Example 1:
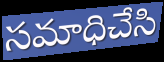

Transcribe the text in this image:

సమాధిచేసి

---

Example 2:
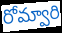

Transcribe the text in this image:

రోమ్వారి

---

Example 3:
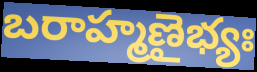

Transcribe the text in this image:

బరాహ్మణైభ్యః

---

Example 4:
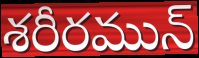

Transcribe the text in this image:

శరీరమున్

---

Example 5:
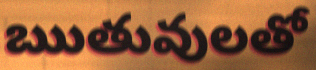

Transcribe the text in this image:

ఋతువులతో